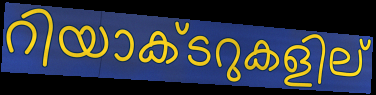
റിയാക്ടറുകളില്